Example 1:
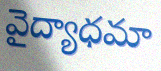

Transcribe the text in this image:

వైద్యాధమా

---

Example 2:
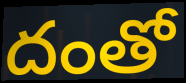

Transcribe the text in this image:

దంతో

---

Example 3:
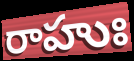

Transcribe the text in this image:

రాహుః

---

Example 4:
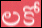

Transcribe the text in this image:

లకో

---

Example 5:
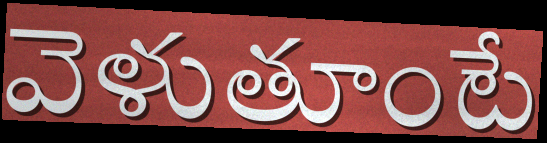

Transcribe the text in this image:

వెళుతూంటే